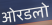
ओरडलो